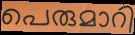
പെരുമാറി